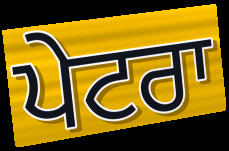
ਪੇਟਰਾ